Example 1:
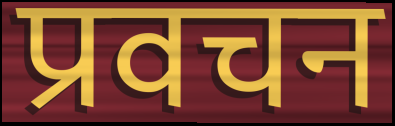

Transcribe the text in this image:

प्रवचन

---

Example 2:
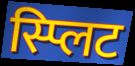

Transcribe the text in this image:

स्प्लिट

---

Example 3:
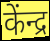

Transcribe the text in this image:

केंन्द्र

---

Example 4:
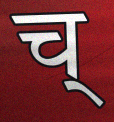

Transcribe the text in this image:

च्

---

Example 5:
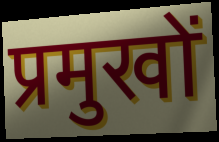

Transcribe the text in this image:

प्रमुखों